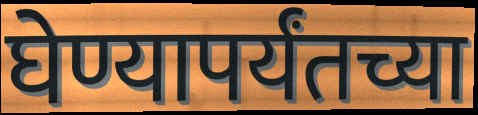
घेण्यापर्यंतच्या